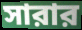
সারার